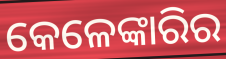
କେଳେଙ୍କାରିର